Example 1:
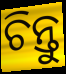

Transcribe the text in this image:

ଚିନ୍ତୁ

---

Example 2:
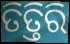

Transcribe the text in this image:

ତିତ୍ତିରି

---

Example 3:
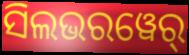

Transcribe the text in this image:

ସିଲଭରୱେର୍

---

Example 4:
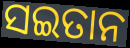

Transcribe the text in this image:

ସଇତାନ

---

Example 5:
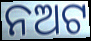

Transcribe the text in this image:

ନଅଟ